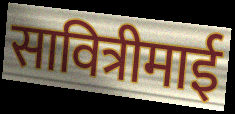
सावित्रीमाई